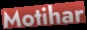
Motihar